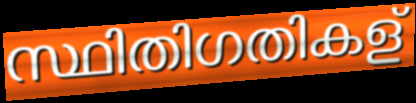
സ്ഥിതിഗതികള്